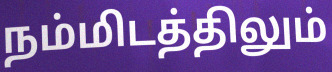
நம்மிடத்திலும்